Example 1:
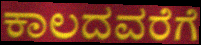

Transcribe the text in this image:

ಕಾಲದವರೆಗೆ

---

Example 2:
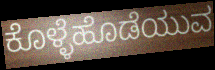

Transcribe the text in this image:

ಕೊಳ್ಳೆಹೊಡೆಯುವ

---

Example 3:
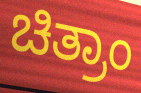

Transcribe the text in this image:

ಚಿತ್ರಾಂ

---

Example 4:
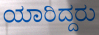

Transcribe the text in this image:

ಯಾರಿದ್ದರು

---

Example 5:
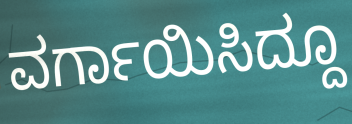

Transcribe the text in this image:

ವರ್ಗಾಯಿಸಿದ್ದೂ